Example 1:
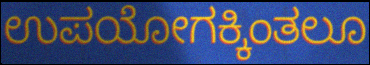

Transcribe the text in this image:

ಉಪಯೋಗಕ್ಕಿಂತಲೂ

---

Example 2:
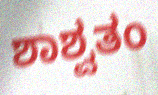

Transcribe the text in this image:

ಶಾಶ್ವತಂ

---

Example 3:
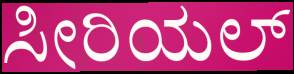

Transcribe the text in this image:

ಸೀರಿಯಲ್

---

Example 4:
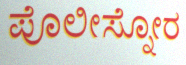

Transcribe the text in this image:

ಪೊಲೀಸ್ನೋರ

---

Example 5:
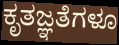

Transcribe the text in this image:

ಕೃತಜ್ಞತೆಗಳೂ